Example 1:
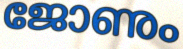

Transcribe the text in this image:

ജോണും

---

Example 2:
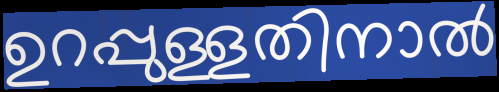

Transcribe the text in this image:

ഉറപ്പുള്ളതിനാൽ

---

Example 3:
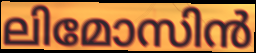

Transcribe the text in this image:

ലിമോസിൻ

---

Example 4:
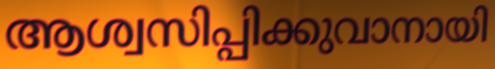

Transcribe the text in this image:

ആശ്വസിപ്പിക്കുവാനായി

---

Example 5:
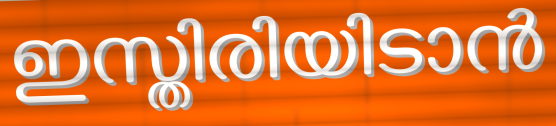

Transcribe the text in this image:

ഇസ്തിരിയിടാൻ